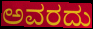
ಅವರದು